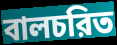
বালচরিত